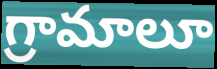
గ్రామాలూ